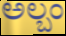
ಅಲ್ಬಂ